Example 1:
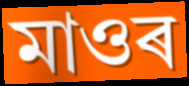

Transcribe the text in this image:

মাওৰ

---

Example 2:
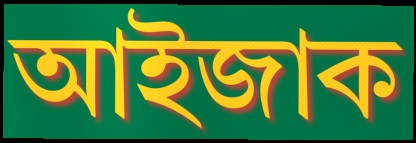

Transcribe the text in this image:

আইজাক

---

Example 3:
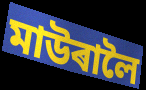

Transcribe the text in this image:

মাউৰালৈ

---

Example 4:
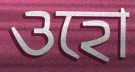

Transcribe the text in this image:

ওহো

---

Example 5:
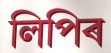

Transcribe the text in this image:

লিপিৰ